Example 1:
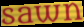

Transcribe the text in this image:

sawn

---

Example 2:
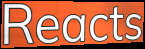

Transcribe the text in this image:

Reacts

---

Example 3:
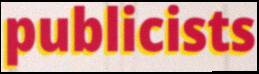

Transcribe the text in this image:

publicists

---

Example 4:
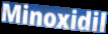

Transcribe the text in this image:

Minoxidil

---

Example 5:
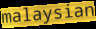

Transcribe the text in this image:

malaysian